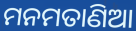
ମନମତାଣିଆ